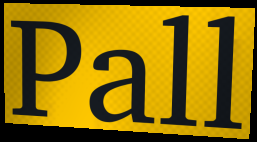
Pall